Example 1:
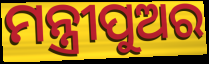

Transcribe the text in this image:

ମନ୍ତ୍ରୀପୁଅର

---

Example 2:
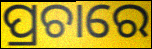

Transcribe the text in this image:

ପ୍ରଚାରେ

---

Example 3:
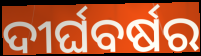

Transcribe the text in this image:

ଦୀର୍ଘବର୍ଷର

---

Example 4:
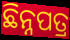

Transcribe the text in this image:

ଛିନ୍ନପତ୍ର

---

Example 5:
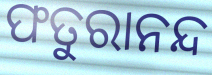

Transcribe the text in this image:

ଫତୁରାନନ୍ଦ